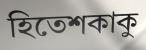
হিতেশকাকু